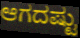
ಆಗದಷ್ಟು